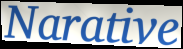
Narative